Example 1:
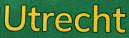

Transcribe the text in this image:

Utrecht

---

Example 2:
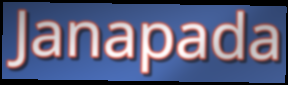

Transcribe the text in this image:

Janapada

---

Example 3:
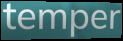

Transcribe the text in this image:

temper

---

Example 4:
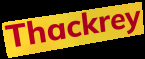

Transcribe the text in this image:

Thackrey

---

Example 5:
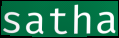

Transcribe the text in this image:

satha